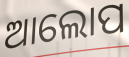
ଆଲୋପ